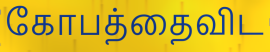
கோபத்தைவிட